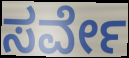
ಸರ್ವೇ